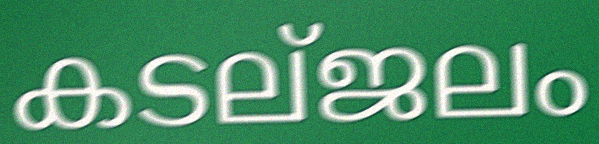
കടല്ജലം